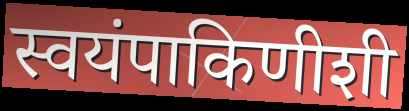
स्वयंपाकिणीशी